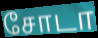
சோடா